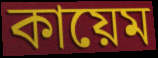
কায়েম